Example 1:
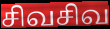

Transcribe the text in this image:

சிவசிவ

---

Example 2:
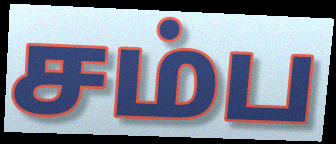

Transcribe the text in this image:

சம்ப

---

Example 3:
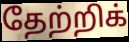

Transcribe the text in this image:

தேற்றிக்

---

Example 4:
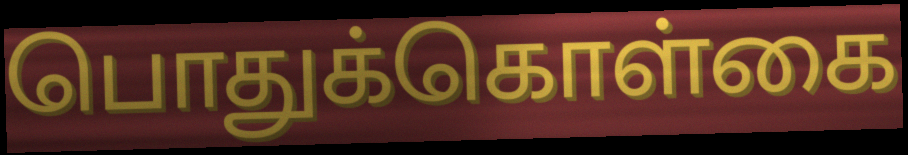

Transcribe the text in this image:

பொதுக்கொள்கை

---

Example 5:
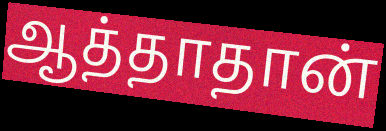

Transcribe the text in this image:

ஆத்தாதான்